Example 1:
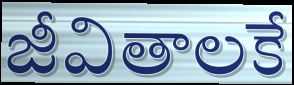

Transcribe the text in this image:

జీవితాలకే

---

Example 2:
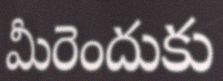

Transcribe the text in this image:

మీరెందుకు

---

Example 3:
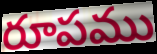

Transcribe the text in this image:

రూపము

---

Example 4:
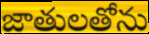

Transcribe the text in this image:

జాతులతోను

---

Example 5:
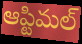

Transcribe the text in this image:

ఆప్టిమల్